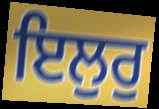
ਇਲੁਰੁ